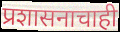
प्रशासनाचाही